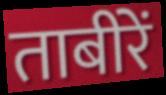
ताबीरें